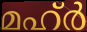
മഹ്ർ